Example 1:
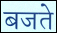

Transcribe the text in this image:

बजते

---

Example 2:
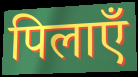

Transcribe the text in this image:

पिलाएँ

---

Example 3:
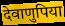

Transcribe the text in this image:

देवाणुपिया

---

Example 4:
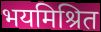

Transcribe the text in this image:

भयमिश्रित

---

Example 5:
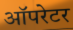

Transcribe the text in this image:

ऑपरेटर